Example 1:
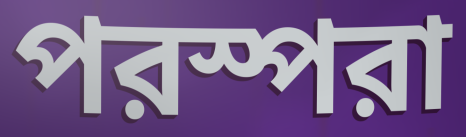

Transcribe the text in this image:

পরস্পরা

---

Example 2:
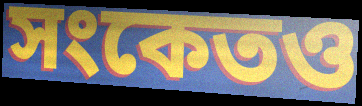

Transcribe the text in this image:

সংকেতও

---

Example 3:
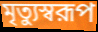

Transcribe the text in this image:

মৃত্যুস্বরূপ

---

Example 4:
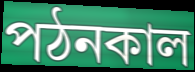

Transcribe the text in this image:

পঠনকাল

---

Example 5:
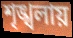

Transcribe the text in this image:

শৃঙ্খলায়